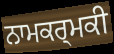
ਨਾਮਕਰ੍ਮਕੀ